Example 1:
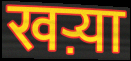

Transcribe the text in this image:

खऱ्‍या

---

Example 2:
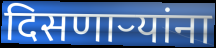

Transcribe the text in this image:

दिसणाऱ्यांना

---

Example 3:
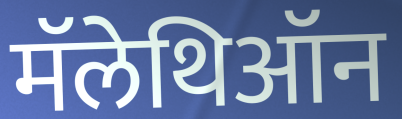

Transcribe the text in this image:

मॅलेथिऑन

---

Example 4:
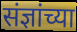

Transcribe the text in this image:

संज्ञांच्या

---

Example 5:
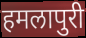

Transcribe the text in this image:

हमलापुरी